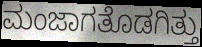
ಮಂಜಾಗತೊಡಗಿತ್ತು